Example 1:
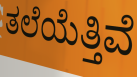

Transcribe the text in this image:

ತಲೆಯೆತ್ತಿವೆ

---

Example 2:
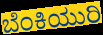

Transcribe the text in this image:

ಬೆಂಕಿಯುರಿ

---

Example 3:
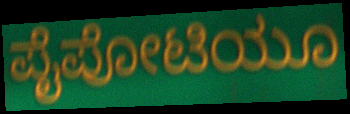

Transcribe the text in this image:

ಪೈಪೋಟಿಯೂ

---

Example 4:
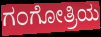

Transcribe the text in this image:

ಗಂಗೋತ್ರಿಯ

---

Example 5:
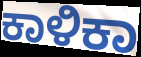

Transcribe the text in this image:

ಕಾಳಿಕಾ